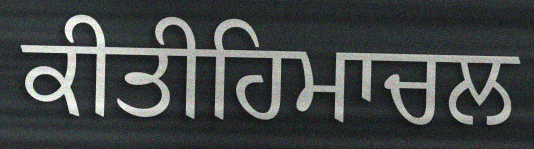
ਕੀਤੀਹਿਮਾਚਲ